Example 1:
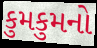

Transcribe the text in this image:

કુમકુમનો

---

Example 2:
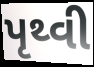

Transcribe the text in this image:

પૃથ્વી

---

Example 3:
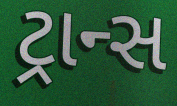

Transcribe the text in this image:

ટ્રાન્સ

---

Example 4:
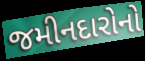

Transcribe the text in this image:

જમીનદારોનો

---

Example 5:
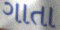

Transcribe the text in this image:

ગાતા